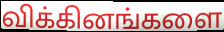
விக்கினங்களை